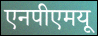
एनपीएमयू